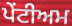
ਪੇਂਟੀਅਮ